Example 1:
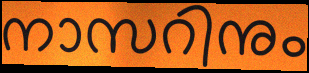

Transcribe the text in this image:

നാസറിനും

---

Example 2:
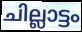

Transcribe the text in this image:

ചില്ലാട്ടം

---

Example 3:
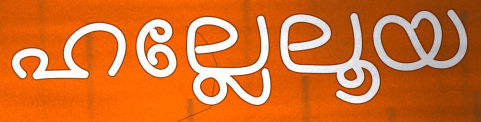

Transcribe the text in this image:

ഹല്ലേലൂയ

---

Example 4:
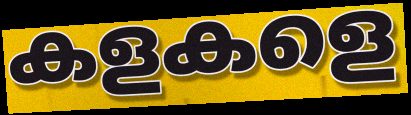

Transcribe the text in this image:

കളകളെ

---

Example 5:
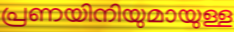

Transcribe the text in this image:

പ്രണയിനിയുമായുള്ള